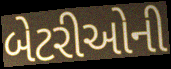
બેટરીઓની